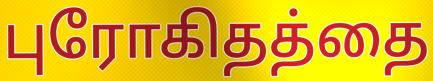
புரோகிதத்தை